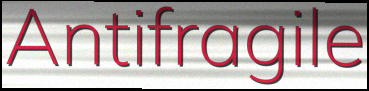
Antifragile